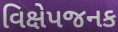
વિક્ષેપજનક